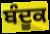
ਬੰਦੂਕ